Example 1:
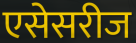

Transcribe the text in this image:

एसेसरीज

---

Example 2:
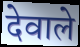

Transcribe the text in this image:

देवाले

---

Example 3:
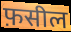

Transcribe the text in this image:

फ़सील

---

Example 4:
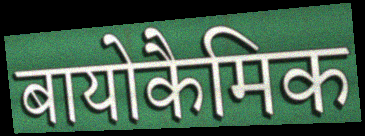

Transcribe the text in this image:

बायोकैमिक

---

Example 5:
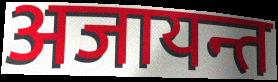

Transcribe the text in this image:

अजायन्त